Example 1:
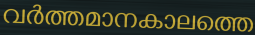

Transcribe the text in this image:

വർത്തമാനകാലത്തെ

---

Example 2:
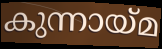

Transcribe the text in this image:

കുന്നായ്മ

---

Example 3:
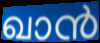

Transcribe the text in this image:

ഖാൻ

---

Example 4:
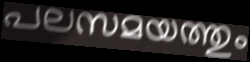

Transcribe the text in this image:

പലസമയത്തും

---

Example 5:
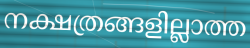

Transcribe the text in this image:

നക്ഷത്രങ്ങളില്ലാത്ത